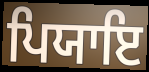
ਪਿਯਾਇ